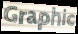
Graphic